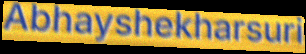
Abhayshekharsuri